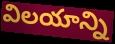
విలయాన్ని